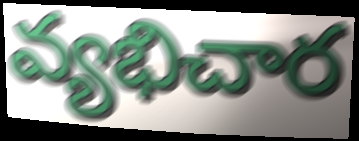
వ్యభిచార